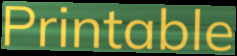
Printable